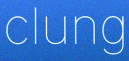
clung